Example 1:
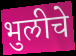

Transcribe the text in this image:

भुलीचे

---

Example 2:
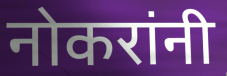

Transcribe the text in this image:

नोकरांनी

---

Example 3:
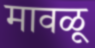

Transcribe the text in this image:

मावळू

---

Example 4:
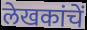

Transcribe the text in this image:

लेखकांचें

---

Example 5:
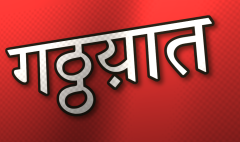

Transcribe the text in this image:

गठ्ठय़ात